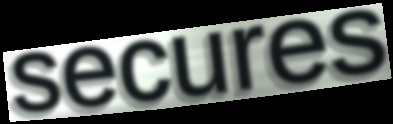
secures